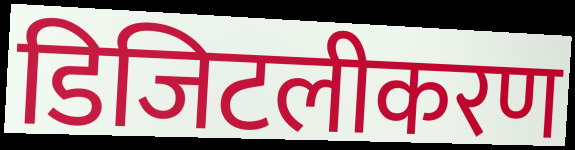
डिजिटलीकरण